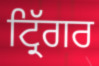
ਟ੍ਰਿੱਗਰ